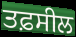
ਤਫ਼ਸੀਲ